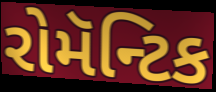
રોમૅન્ટિક